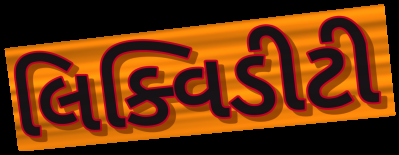
લિક્વિડીટી